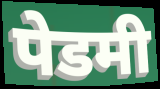
पेडमी